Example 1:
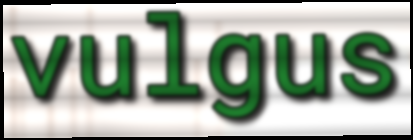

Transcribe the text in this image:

vulgus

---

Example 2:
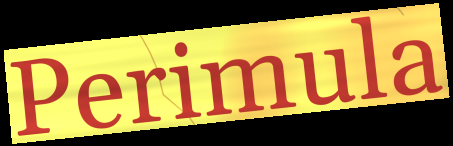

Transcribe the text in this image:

Perimula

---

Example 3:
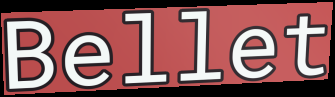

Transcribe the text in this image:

Bellet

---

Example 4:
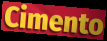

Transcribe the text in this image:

Cimento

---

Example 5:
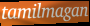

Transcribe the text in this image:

tamilmagan